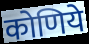
कोणिये